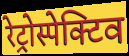
रेट्रोस्पेक्टिव